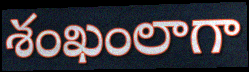
శంఖంలాగా